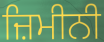
ਜ਼ਿਮੀਨੀ